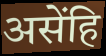
असेंहि